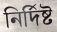
নির্দিষ্ট